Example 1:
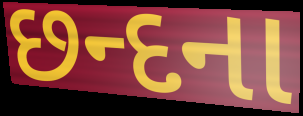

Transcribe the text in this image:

છન્દના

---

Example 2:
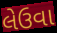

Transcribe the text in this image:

લેઉવા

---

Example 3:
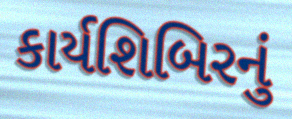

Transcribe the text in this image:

કાર્યશિબિરનું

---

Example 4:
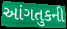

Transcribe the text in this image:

આંગતુકની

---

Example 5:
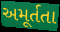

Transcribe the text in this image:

અમૂર્તતા